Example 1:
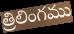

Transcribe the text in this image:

త్రిలింగము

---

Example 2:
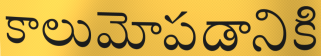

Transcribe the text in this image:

కాలుమోపడానికి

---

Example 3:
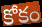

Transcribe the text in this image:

కోకం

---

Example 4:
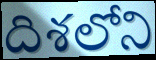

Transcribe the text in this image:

దిశలోని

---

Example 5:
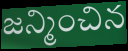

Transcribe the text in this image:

జన్మించిన